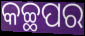
କଚ୍ଛପର